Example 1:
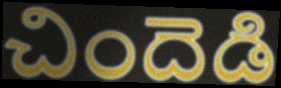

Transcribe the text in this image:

చిందెడి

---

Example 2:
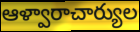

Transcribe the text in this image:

ఆళ్వారాచార్యుల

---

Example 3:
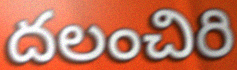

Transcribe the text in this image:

దలంచిరి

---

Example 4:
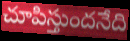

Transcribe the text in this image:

చూపిస్తుందనేది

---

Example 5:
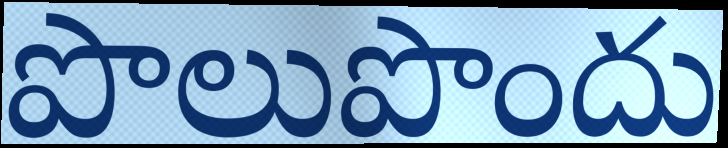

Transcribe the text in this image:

పొలుపొందు